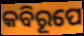
କବିରୂପେ